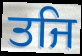
ਤਜਿ